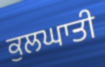
ਕੁਲਘਾਤੀ